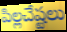
పిల్లచేష్టలు